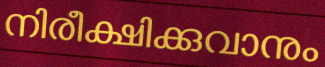
നിരീക്ഷിക്കുവാനും